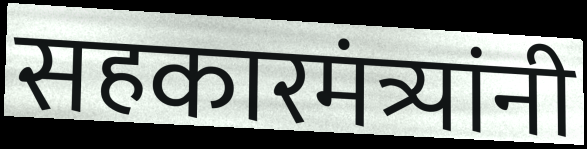
सहकारमंत्र्यांनी